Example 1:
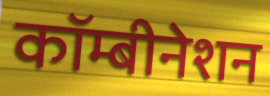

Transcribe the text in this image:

कॉम्बीनेशन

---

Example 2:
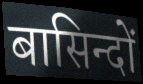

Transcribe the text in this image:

बासिन्दों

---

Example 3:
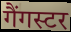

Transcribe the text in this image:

गैंगस्‍टर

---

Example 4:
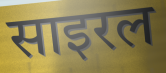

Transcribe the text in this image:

साइरल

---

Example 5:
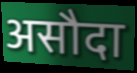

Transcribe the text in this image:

असौदा